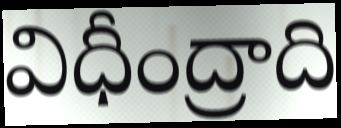
విధీంద్రాది